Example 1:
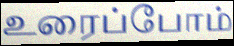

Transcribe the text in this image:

உரைப்போம்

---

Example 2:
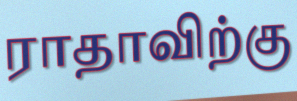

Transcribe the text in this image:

ராதாவிற்கு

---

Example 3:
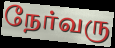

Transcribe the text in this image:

நேர்வரு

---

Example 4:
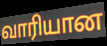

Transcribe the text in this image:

வாரியான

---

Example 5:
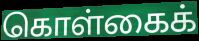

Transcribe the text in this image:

கொள்கைக்